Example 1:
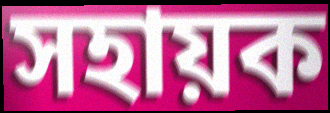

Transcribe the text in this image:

সহায়ক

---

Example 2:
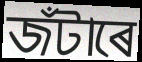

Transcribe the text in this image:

জঁটাৰে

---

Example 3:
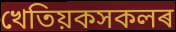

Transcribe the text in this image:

খেতিয়কসকলৰ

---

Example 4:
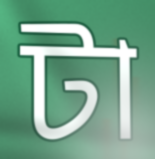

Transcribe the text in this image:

টা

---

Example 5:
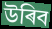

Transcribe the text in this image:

উৰিব